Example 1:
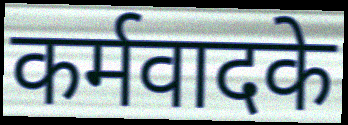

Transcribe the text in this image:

कर्मवादके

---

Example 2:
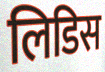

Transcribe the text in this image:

लिडिस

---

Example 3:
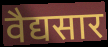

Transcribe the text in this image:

वैद्यसार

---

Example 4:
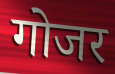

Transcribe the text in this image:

गोजर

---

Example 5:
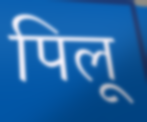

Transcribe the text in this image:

पिलू